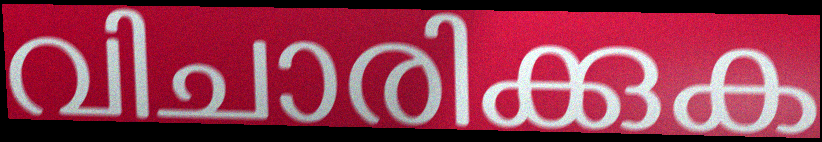
വിചാരിക്കുക